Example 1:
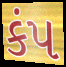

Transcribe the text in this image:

કંપ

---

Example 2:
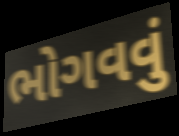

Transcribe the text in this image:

ભોગવવું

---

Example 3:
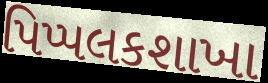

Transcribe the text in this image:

પિપ્પલકશાખા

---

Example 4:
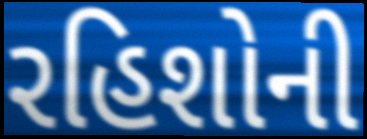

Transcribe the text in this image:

રહિશોની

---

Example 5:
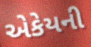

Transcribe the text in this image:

એકેયની